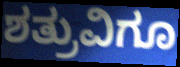
ಶತ್ರುವಿಗೂ